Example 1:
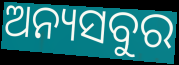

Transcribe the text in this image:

ଅନ୍ୟସବୁର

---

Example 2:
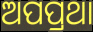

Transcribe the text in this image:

ଅପପ୍ରଥା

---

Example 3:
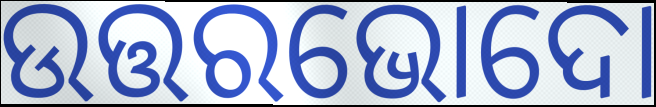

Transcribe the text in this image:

ଉତ୍ତରଭୋଦୋ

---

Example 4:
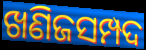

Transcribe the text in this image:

ଖଣିଜସମ୍ପଦ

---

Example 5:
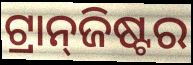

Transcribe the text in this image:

ଟ୍ରାନ୍‍ଜିଷ୍ଟର